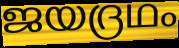
ജയദ്രഥം